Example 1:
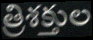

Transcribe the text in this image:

త్రిశక్తుల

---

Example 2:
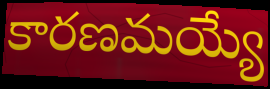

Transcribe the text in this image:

కారణమయ్యే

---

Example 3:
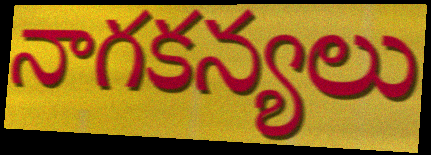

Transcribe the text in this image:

నాగకన్యలు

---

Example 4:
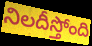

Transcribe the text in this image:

నిలదీస్తోంది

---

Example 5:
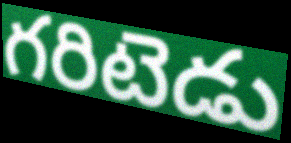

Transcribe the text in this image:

గరిటెడు